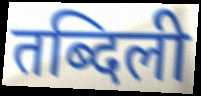
तब्दिली